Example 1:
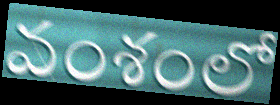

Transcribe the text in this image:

వంశంలో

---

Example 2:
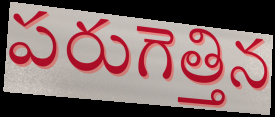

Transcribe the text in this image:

పరుగెత్తిన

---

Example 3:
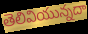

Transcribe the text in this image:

తెలివియున్నదా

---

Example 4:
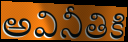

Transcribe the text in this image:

అవినీతికి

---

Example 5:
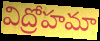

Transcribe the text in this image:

విద్రోహమా